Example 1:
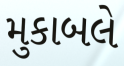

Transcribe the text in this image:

મુકાબલે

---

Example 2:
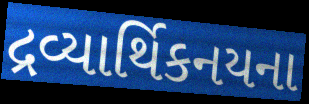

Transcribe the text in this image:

દ્રવ્યાર્થિકનયના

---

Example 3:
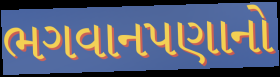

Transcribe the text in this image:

ભગવાનપણાનો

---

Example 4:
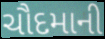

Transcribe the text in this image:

ચૌદમાની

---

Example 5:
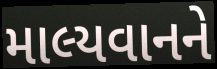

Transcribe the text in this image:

માલ્યવાનને